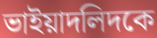
ভাইয়াদলিদকে